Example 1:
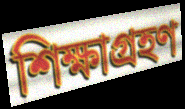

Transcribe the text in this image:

শিক্ষাগ্রহণ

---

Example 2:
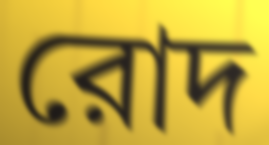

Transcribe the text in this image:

রোদ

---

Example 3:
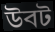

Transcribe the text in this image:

উবট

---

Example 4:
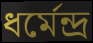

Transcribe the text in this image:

ধর্মেন্দ্র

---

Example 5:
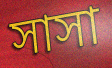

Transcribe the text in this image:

সাসা